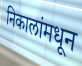
निकालांमधून